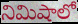
నిమిషాలో